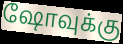
ஷோவுக்கு